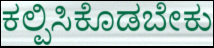
ಕಲ್ಪಿಸಿಕೊಡಬೇಕು